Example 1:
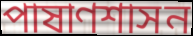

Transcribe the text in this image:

পাষাণশাসন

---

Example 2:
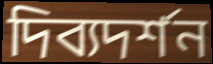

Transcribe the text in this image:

দিব্যদর্শন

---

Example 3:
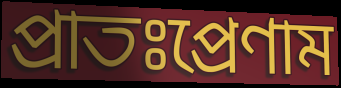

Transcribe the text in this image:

প্রাতঃপ্রেণাম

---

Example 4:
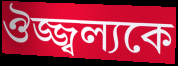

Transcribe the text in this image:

ঔজ্জ্বল্যকে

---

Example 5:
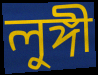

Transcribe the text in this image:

লুঙ্গী